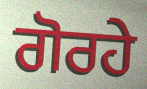
ਗੋਰਹੇ